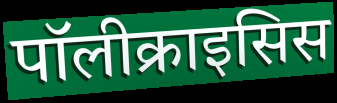
पॉलीक्राइसिस